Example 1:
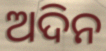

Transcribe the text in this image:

ଅଦିନ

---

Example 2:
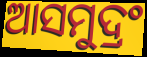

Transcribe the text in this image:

ଆସମୁଦ୍ରଂ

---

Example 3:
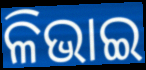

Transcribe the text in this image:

ଳିଭାଇ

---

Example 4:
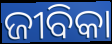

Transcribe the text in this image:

ଜୀବିକା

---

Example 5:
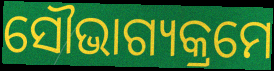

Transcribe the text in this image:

ସୌଭାଗ୍ୟକ୍ରମେ